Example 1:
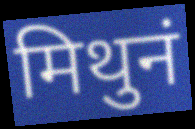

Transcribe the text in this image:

मिथुनं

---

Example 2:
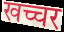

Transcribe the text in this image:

खच्‍चर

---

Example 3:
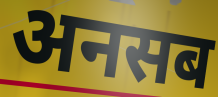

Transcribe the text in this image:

अनसब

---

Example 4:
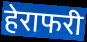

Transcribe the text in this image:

हेराफरी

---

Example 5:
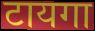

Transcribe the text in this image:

टायगा